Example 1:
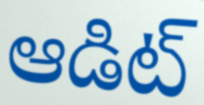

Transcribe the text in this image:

ఆడిట్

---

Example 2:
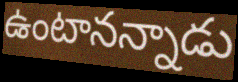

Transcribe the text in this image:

ఉంటానన్నాడు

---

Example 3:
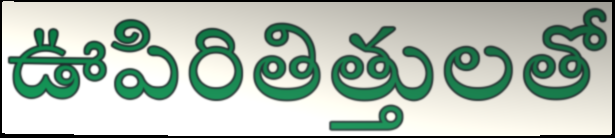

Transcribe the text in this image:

ఊపిరితిత్తులతో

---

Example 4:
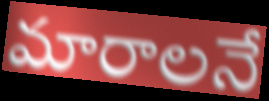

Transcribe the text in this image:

మారాలనే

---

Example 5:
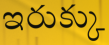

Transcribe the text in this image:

ఇరుక్కు